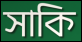
সাকি